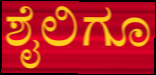
ಶೈಲಿಗೂ